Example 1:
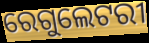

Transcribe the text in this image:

ରେଗୁଲେଟରୀ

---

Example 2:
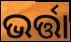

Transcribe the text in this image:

ଭର୍ତ୍ତା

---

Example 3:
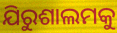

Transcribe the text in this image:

ଯିରୁଶାଲମକୁ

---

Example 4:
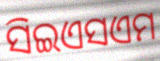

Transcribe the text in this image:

ସିଇଏସଏମ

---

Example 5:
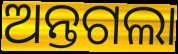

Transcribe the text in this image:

ଅନ୍ତଗଲା